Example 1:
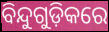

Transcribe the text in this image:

ବିନ୍ଦୁଗୁଡ଼ିକରେ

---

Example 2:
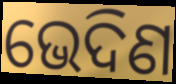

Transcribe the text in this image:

ଭେଦିଣ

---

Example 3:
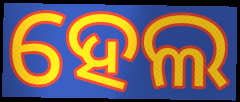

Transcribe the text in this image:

ହେଲ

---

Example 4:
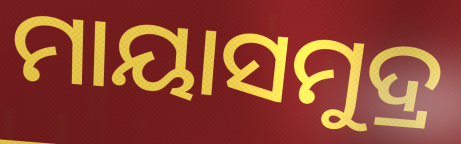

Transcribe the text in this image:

ମାୟାସମୁଦ୍ର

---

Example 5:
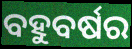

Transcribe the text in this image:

ବହୁବର୍ଷର